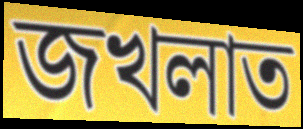
জখলাত